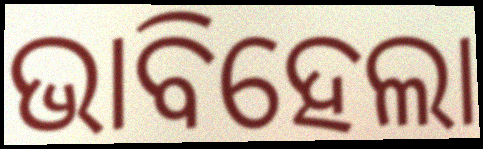
ଭାବିହେଲା